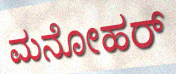
ಮನೋಹರ್